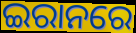
ଇରାନରେ